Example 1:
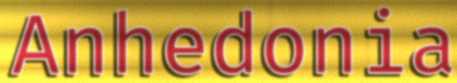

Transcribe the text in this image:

Anhedonia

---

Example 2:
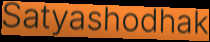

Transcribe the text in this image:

Satyashodhak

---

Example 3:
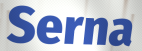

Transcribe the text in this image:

Serna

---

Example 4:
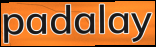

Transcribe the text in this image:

padalay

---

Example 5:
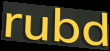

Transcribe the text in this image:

rubd